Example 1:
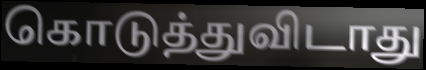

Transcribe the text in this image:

கொடுத்துவிடாது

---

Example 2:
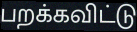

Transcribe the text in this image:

பறக்கவிட்டு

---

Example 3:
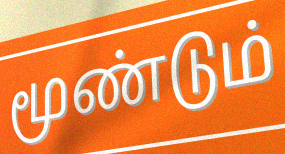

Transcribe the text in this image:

மூண்டும்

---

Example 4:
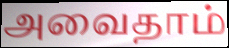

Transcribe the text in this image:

அவைதாம்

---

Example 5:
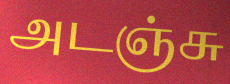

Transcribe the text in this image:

அடஞ்சு